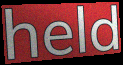
held